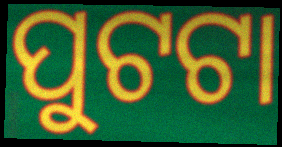
ପୁଟଟା